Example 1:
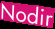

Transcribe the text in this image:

Nodir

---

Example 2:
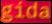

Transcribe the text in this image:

gida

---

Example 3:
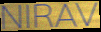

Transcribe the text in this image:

NIRAV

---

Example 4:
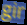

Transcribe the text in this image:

gir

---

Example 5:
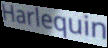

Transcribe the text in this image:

Harlequin